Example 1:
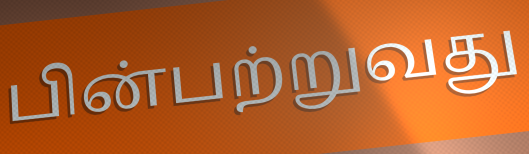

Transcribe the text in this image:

பின்பற்றுவது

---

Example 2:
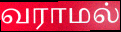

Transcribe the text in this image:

வராமல்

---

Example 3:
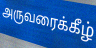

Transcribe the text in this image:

அருவரைக்கீழ்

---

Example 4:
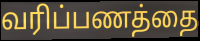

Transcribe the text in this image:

வரிப்பணத்தை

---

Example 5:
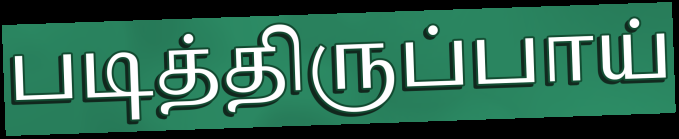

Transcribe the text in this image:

படித்திருப்பாய்